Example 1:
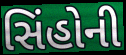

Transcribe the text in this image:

સિંહોની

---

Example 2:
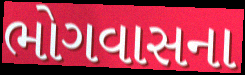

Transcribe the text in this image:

ભોગવાસના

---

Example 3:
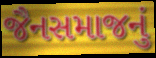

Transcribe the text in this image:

જૈનસમાજનું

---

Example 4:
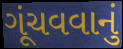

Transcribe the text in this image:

ગૂંચવવાનું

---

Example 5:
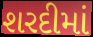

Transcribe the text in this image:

શરદીમાં